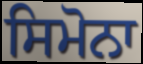
ਸਿਮੋਨਾ